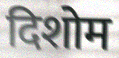
दिशोम